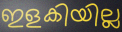
ഇളകിയില്ല